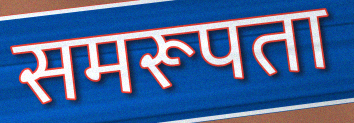
समरूपता